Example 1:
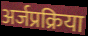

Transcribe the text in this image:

अर्जप्रक्रिया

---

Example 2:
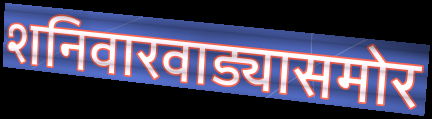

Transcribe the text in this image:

शनिवारवाड्यासमोर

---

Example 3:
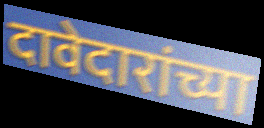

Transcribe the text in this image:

दावेदारांच्या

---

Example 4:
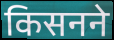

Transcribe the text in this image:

किसनने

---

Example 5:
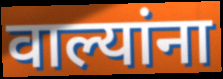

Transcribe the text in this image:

वाल्यांना